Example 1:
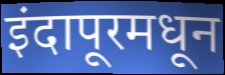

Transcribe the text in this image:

इंदापूरमधून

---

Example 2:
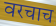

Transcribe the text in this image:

वरचाच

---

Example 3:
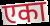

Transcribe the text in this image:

एका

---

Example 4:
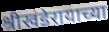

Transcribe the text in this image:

श्रीखंडेरायाच्या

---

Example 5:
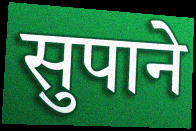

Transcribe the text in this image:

सुपाने